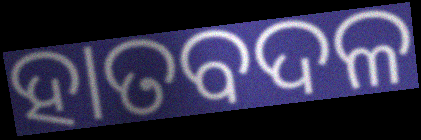
ହାତବଦଳ